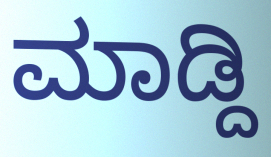
ಮಾಡ್ದಿ